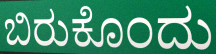
ಬಿರುಕೊಂದು